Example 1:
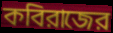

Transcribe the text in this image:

কবিরাজের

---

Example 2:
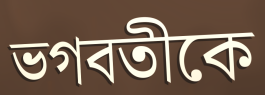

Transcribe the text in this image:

ভগবতীকে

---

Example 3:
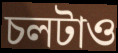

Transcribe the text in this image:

চলটাও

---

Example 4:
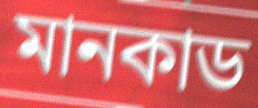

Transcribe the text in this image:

মানকাড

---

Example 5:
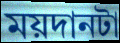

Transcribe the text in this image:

ময়দানটা